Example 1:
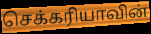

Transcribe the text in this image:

செக்கரியாவின்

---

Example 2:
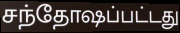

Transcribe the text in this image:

சந்தோஷப்பட்டது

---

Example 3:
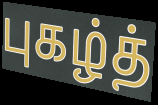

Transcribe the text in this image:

புகழ்த்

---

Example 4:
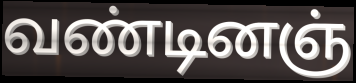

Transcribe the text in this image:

வண்டினஞ்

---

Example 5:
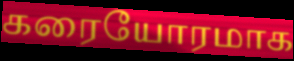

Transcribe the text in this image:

கரையோரமாக